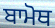
ਬਾਮੋਥ